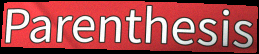
Parenthesis